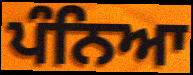
ਪੰਨਿਆ